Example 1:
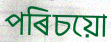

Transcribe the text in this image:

পৰিচয়ো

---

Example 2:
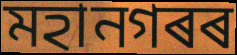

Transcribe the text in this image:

মহানগৰৰ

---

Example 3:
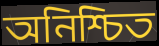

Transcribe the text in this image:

অনিশ্চিত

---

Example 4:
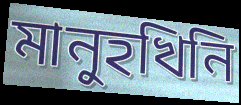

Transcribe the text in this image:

মানুহখিনি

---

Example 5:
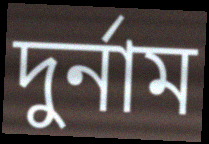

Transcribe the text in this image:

দুৰ্নাম